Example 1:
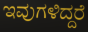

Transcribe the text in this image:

ಇವುಗಳಿದ್ದರೆ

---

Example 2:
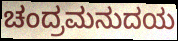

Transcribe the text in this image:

ಚಂದ್ರಮನುದಯ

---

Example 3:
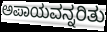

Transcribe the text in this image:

ಅಪಾಯವನ್ನರಿತು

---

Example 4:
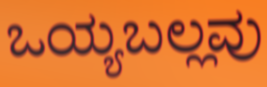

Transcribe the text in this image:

ಒಯ್ಯಬಲ್ಲವು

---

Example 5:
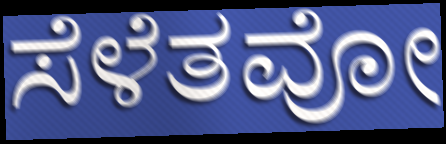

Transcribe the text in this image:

ಸೆಳೆತವೋ